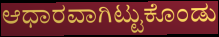
ಆಧಾರವಾಗಿಟ್ಟುಕೊಂಡು